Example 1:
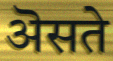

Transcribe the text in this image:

ऄसते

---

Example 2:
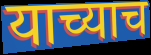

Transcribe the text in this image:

याच्याच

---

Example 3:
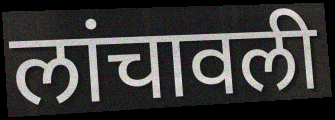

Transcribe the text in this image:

लांचावली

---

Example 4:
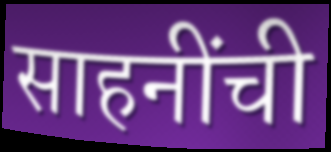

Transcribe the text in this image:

साहनींची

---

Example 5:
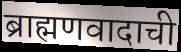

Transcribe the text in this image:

ब्राह्मणवादाची